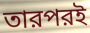
তারপরই